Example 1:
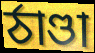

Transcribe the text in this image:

ঠাণ্ডা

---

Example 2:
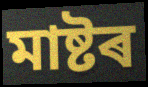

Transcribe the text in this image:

মাষ্টৰ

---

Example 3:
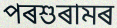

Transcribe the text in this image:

পৰশুৰামৰ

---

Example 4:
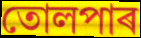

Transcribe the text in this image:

তোলপাৰ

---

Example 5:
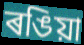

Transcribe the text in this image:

ৰঙিয়া